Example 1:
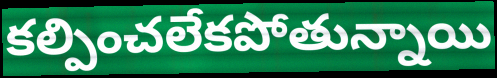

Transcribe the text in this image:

కల్పించలేకపోతున్నాయి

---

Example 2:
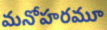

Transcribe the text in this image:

మనోహరమూ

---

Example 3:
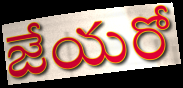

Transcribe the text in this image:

జేయరో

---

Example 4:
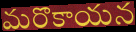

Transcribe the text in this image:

మరొకాయన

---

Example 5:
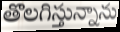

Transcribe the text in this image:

తొలగిస్తున్నాను